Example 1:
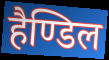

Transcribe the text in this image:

हैण्डिल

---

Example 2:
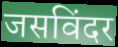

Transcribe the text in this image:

जसविंदर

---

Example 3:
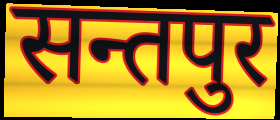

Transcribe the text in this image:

सन्तपुर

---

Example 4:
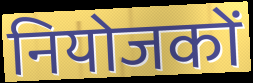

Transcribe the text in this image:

नियोजकों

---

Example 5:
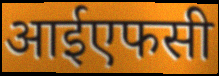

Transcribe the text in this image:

आईएफसी